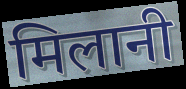
मिलानी